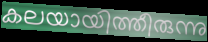
കലയായിത്തീരുന്നു